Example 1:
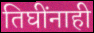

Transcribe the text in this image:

तिघींनाही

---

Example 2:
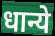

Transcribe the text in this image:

धान्ये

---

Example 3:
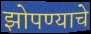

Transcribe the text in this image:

झोपण्याचे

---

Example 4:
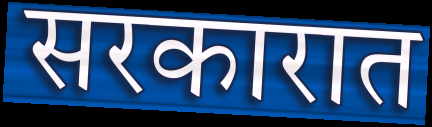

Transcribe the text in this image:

सरकारात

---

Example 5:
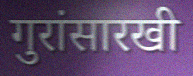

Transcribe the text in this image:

गुरांसारखी